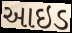
આઇડ